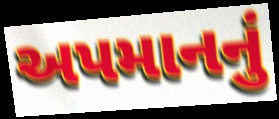
અપમાનનું